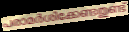
പരാമർശിക്കേണ്ടതുണ്ട്